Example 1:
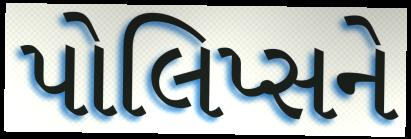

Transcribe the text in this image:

પોલિપ્સને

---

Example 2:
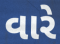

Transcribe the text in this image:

વારે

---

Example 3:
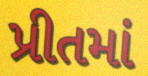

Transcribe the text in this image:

પ્રીતમાં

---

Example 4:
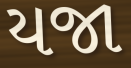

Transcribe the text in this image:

યજા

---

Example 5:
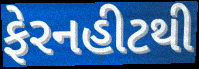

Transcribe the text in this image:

ફેરનહીટથી